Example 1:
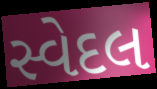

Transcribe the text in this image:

સ્વેદલ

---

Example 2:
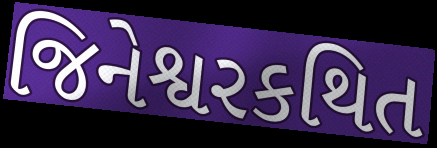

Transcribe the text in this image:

જિનેશ્વરકથિત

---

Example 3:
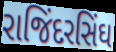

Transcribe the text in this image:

રાજિંદરસિંઘ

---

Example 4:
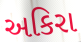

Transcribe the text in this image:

અકિરા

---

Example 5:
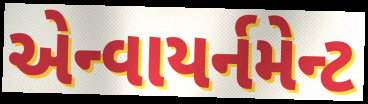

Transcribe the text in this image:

એન્વાયર્નમેન્ટ